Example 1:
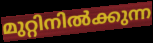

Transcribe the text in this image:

മുറ്റിനിൽക്കുന്ന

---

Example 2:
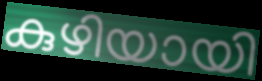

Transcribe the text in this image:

കുഴിയായി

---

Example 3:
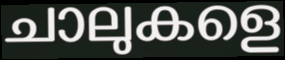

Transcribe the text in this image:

ചാലുകളെ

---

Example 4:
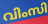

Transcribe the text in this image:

വിംസി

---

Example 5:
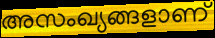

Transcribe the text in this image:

അസംഖ്യങ്ങളാണ്